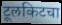
टूलकिटचा